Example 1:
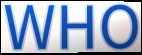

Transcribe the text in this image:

WHO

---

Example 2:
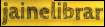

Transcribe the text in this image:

jainelibrar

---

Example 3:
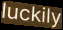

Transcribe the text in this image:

luckily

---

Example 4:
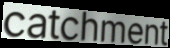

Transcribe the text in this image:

catchment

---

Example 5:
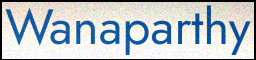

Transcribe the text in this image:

Wanaparthy